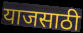
याजसाठी